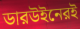
ডারউইনেরই